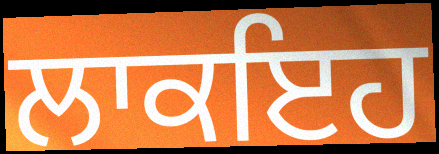
ਲਾਕਇਹ